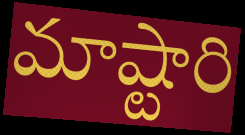
మాష్టారి